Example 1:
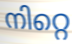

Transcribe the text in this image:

നിറ്റെ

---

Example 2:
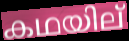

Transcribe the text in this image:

കഥയില്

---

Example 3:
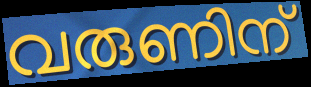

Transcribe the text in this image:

വരുണിന്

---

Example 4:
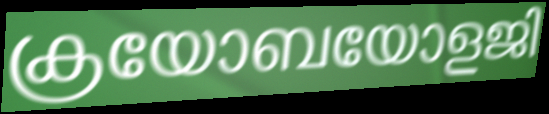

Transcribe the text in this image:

ക്രയോബയോളജി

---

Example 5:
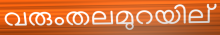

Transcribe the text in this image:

വരുംതലമുറയില്